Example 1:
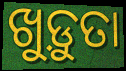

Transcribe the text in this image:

ଖୁଡ଼ୁତା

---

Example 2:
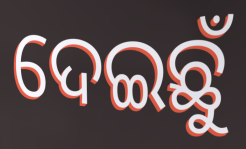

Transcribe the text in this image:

ଦେଇଛୁଁ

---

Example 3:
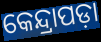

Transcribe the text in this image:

କେନ୍ଦ୍ରାପଡ଼ା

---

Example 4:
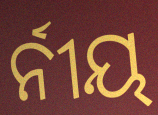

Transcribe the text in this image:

ର୍ନୀୟ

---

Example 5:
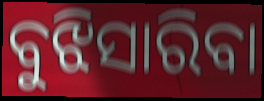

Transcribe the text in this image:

ବୁଝିସାରିବା